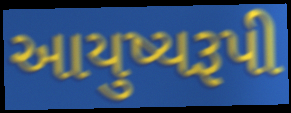
આયુષ્યરૂપી